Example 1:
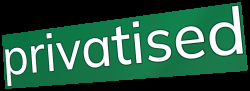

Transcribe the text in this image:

privatised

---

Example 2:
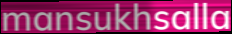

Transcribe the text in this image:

mansukhsalla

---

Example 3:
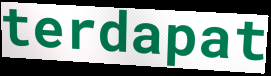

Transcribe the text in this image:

terdapat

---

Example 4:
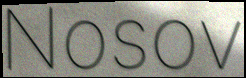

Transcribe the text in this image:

Nosov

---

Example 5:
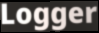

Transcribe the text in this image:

Logger